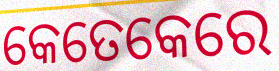
କେତେକେରେ